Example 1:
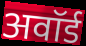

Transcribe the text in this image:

अवॉर्ड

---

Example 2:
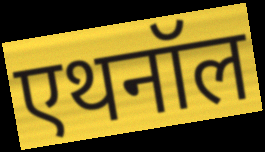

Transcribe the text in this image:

एथनॉल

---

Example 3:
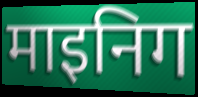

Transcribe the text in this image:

माइनिग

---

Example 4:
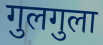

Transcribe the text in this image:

गुलगुला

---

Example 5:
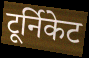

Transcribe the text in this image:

टूर्निकेट